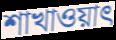
শাখাওয়াৎ